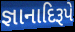
જ્ઞાનાદિરૂપે